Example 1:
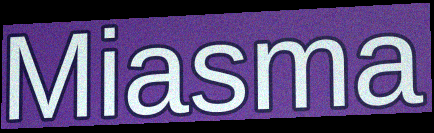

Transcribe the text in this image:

Miasma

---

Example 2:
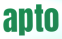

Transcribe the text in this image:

apto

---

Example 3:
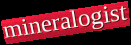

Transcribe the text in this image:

mineralogist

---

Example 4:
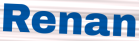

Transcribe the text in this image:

Renan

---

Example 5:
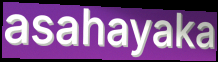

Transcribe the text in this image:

asahayaka